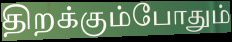
திறக்கும்போதும்